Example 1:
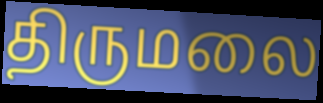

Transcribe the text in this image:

திருமலை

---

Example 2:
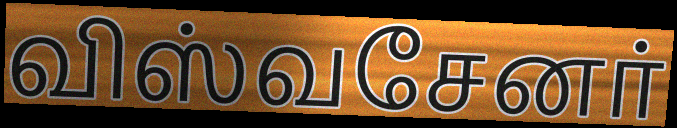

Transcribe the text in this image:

விஸ்வசேனர்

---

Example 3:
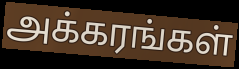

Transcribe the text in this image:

அக்கரங்கள்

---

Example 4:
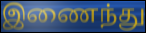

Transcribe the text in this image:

இணைந்து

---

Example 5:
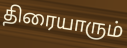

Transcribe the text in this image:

திரையாரும்